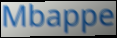
Mbappe